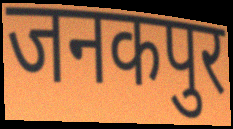
जनकपुर